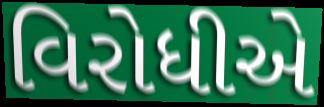
વિરોધીએ